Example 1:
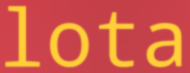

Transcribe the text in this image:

lota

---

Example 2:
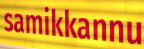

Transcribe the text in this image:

samikkannu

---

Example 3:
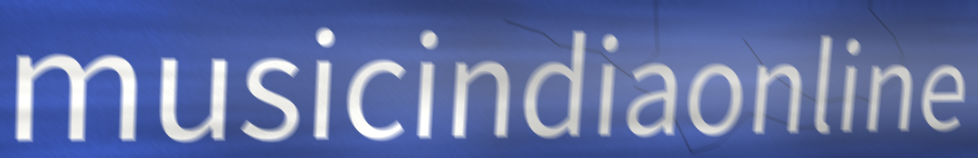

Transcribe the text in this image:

musicindiaonline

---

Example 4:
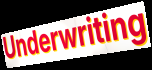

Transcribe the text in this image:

Underwriting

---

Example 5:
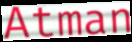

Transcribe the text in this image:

Atman